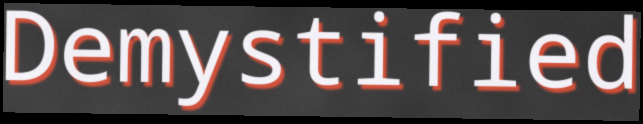
Demystified